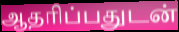
ஆதரிப்பதுடன்